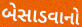
બેસાડવાનો